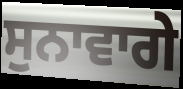
ਸੁਨਾਵਾਗੇ